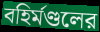
বহির্মণ্ডলের